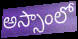
అస్సాంలో